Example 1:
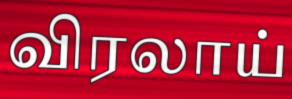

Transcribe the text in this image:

விரலாய்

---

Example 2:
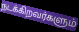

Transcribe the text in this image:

நடக்கிறவர்களும்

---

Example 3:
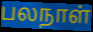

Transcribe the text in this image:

பலநாள்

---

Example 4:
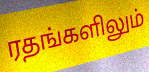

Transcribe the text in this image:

ரதங்களிலும்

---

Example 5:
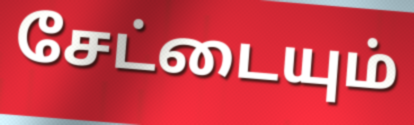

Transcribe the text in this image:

சேட்டையும்